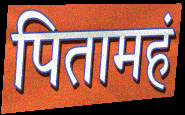
पितामहं